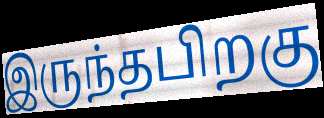
இருந்தபிறகு